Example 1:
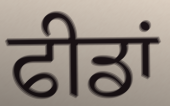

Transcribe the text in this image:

ਫੀਡਾਂ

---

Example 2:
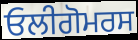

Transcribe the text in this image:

ਓਲੀਗੋਮਰਸ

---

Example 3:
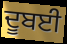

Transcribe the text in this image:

ਦੂਬਈ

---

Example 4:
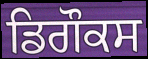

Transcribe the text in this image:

ਡਿਗੌਕਸ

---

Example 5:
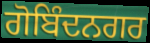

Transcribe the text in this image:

ਗੋਬਿੰਦਨਗਰ